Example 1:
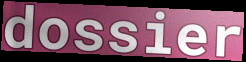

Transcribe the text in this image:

dossier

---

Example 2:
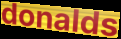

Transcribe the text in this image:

donalds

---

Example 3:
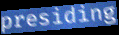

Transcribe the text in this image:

presiding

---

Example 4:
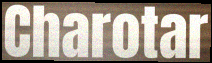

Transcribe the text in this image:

Charotar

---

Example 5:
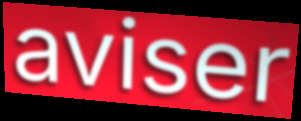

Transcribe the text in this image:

aviser